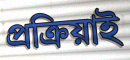
প্ৰক্ৰিয়াই